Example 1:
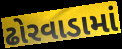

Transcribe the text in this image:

ઢોરવાડામાં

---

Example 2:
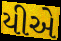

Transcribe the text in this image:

યીએ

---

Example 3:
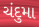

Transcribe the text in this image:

ચંદુમા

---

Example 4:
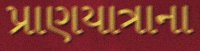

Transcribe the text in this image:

પ્રાણયાત્રાના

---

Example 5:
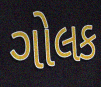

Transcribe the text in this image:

ગોલક